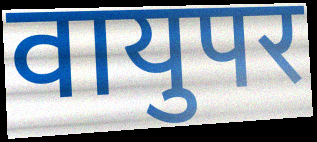
वायुपर